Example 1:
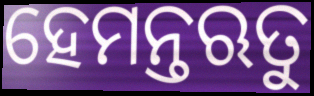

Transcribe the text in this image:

ହେମନ୍ତଋତୁ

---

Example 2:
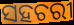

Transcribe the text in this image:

ସହଚରୀ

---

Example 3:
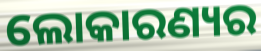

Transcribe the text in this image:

ଲୋକାରଣ୍ୟର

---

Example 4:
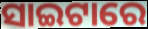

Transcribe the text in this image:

ସାଇଟାରେ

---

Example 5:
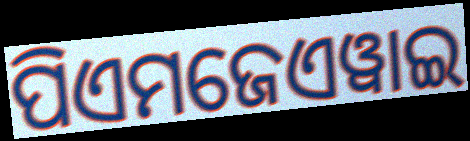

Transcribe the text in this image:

ପିଏମଜେଏୱାଇ